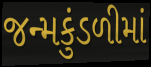
જન્મકુંડળીમાં